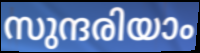
സുന്ദരിയാം